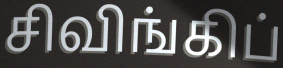
சிவிங்கிப்